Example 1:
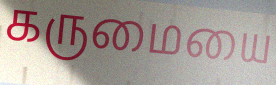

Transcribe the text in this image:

கருமையை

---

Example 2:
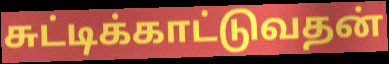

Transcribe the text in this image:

சுட்டிக்காட்டுவதன்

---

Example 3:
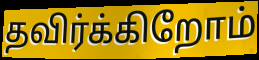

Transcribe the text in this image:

தவிர்க்கிறோம்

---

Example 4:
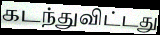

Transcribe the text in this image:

கடந்துவிட்டது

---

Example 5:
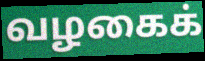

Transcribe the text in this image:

வழகைக்